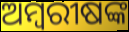
ଅମ୍ବରୀଷଙ୍କ